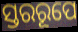
ସ୍ତରରୂପେ